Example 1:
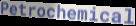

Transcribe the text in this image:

Petrochemical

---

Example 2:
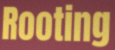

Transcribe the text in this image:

Rooting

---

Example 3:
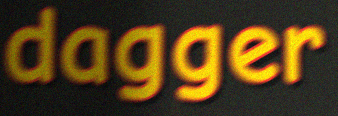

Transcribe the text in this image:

dagger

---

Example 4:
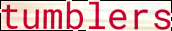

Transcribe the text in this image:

tumblers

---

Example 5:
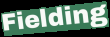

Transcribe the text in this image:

Fielding